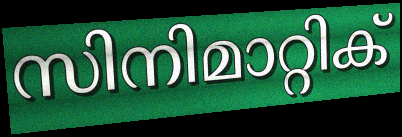
സിനിമാറ്റിക്